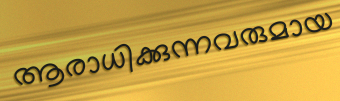
ആരാധിക്കുന്നവരുമായ